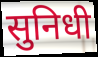
सुनिधी